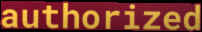
authorized